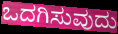
ಒದಗಿಸುವುದು